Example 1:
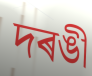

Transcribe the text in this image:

দৰঙী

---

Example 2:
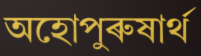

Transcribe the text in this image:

অহোপুৰুষাৰ্থ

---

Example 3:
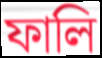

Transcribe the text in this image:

ফালি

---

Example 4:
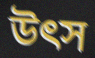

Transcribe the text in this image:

উৎস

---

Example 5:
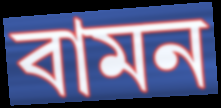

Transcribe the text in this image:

বামন